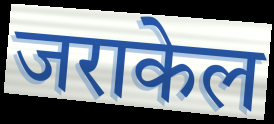
जराकेल